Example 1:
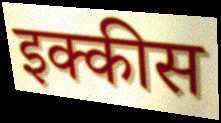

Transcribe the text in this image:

इक्कीस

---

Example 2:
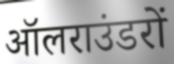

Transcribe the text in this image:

ऑलराउंडरों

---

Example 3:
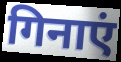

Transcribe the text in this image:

गिनाएं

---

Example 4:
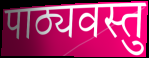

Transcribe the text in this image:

पाठ्यवस्तु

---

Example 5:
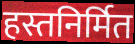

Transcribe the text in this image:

हस्तनिर्मित